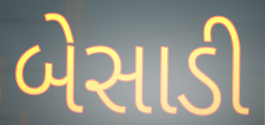
બેસાડી